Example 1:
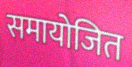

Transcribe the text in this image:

समायोजित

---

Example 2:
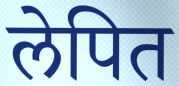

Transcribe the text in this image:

लेपित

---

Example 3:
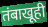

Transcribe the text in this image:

तंबाखूही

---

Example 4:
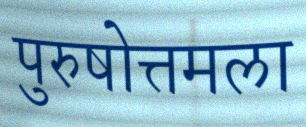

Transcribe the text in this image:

पुरुषोत्तमला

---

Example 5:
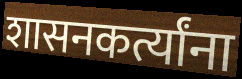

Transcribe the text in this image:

शासनकर्त्यांना